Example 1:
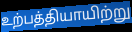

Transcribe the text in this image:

உற்பத்தியாயிற்று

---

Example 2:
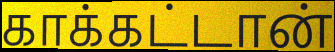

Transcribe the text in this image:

காக்கட்டான்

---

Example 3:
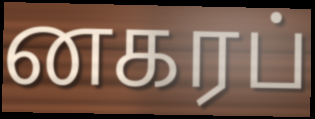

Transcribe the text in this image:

னகரப்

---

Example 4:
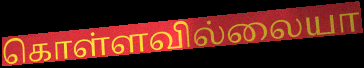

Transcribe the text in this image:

கொள்ளவில்லையா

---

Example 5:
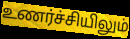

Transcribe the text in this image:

உணர்ச்சியிலும்